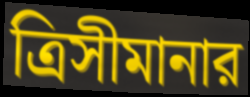
ত্রিসীমানার